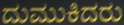
ದುಮುಕಿದರು